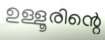
ഉള്ളൂരിന്റെ